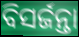
ବିସର୍ଜନ୍ତା